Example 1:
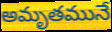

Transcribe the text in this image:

అమృతమునే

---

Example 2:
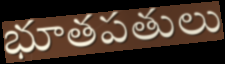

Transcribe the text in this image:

భూతపతులు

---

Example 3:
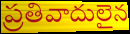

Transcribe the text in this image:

ప్రతివాదులైన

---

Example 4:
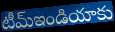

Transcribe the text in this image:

టీమ్ఇండియాకు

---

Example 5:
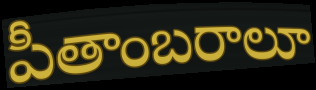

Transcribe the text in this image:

పీతాంబరాలూ